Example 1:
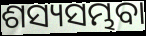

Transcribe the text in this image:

ଶସ୍ୟସମ୍ଭବା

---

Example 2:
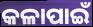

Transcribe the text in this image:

କଳାପାଇଁ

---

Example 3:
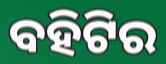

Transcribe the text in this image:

ବହିଟିର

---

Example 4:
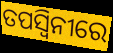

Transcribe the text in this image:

ତପସ୍ଵିନୀରେ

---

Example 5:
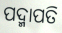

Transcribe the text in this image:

ପଦ୍ମାପତି